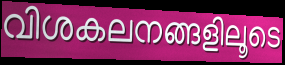
വിശകലനങ്ങളിലൂടെ